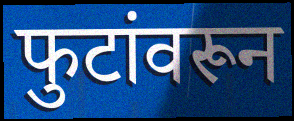
फुटांवरून